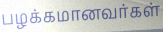
பழக்கமானவர்கள்